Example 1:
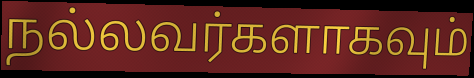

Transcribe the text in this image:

நல்லவர்களாகவும்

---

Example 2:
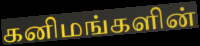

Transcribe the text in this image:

கனிமங்களின்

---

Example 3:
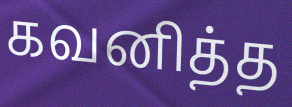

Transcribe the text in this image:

கவனித்த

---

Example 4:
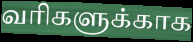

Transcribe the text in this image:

வரிகளுக்காக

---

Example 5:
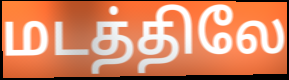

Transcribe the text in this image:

மடத்திலே